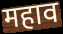
महाव